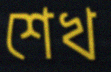
শেখ